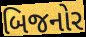
બિજનોર